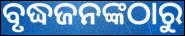
ବୃଦ୍ଧଜନଙ୍କଠାରୁ